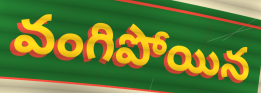
వంగిపోయిన